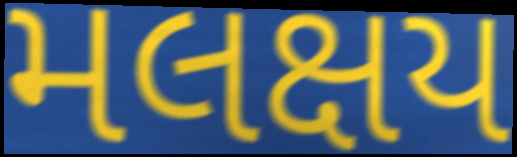
મલક્ષય